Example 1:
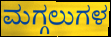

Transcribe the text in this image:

ಮಗ್ಗಲುಗಳ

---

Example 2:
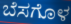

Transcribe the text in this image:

ಬೆಸಗೊಳ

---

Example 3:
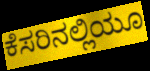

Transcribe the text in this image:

ಕೆಸರಿನಲ್ಲಿಯೂ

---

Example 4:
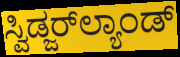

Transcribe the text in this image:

ಸ್ವಿಡ್ಜರ್‌ಲ್ಯಾಂಡ್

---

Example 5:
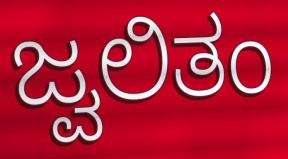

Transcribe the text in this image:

ಜ್ವಲಿತಂ